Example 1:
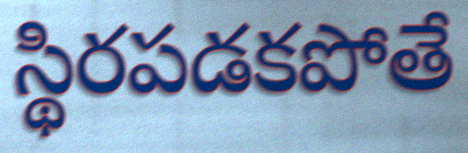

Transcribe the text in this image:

స్థిరపడకపోతే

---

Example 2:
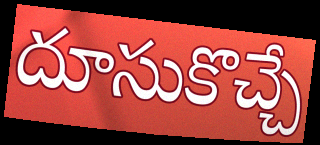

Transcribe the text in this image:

దూసుకొచ్చే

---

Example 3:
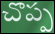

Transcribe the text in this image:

చొప్ప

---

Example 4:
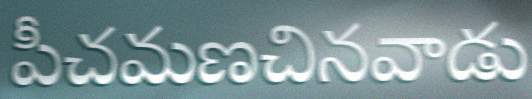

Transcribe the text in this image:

పీచమణచినవాడు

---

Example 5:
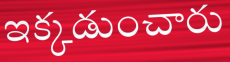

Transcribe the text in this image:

ఇక్కడుంచారు